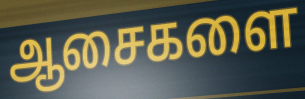
ஆசைகளை